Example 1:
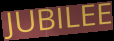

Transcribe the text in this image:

JUBILEE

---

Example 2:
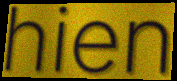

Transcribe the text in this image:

hien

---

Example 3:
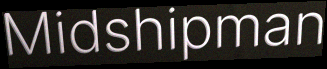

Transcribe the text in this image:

Midshipman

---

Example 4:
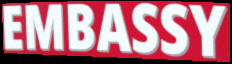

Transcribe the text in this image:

EMBASSY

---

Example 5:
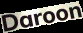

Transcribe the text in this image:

Daroon